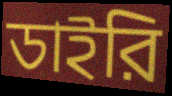
ডাইরি